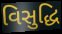
વિસુદ્ધિ